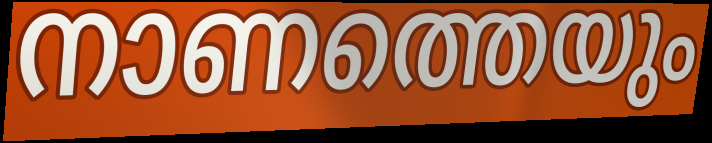
നാണത്തെയും